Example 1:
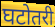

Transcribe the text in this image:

घटोतरी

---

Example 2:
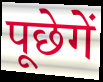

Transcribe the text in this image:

पूछेगें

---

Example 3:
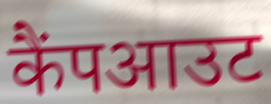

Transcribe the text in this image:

कैंपआउट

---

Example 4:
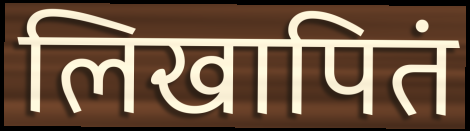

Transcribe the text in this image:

लिखापितं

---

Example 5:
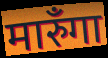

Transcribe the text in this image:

मारुँगा